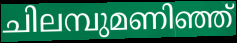
ചിലമ്പുമണിഞ്ഞ്